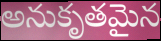
అనుకృతమైన